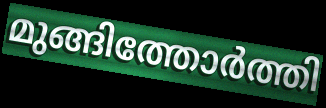
മുങ്ങിത്തോർത്തി